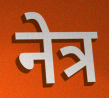
नेत्र